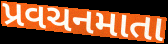
પ્રવચનમાતા